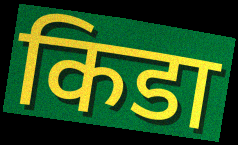
किडा